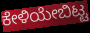
ಕೇಳಿಯೇಬಿಟ್ಟ